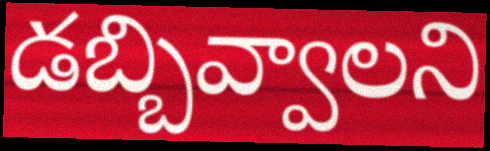
డబ్బివ్వాలని